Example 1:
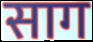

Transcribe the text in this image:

साग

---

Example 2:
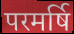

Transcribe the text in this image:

परमर्षि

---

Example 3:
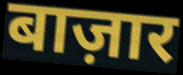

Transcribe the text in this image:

बाज़ार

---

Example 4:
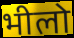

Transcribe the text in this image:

भीलो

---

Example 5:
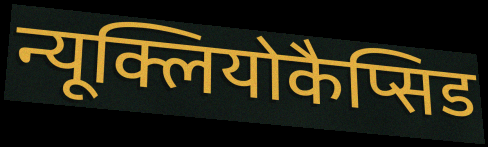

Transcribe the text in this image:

न्यूक्लियोकैप्सिड